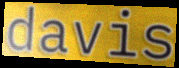
davis